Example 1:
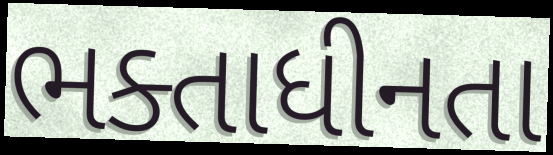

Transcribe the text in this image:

ભક્તાધીનતા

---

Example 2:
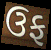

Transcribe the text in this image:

ઉફ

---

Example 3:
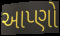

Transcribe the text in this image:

આપ્ણો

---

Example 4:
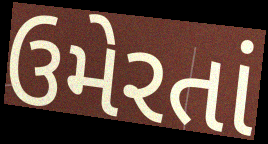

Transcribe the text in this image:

ઉમેરતાં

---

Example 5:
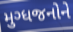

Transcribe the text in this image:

મુગ્ધજનોને